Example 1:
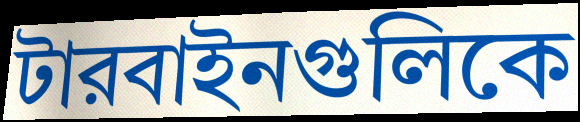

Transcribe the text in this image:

টারবাইনগুলিকে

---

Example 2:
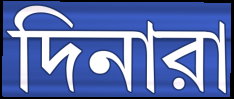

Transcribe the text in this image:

দিনারা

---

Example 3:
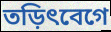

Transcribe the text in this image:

তড়িৎবেগে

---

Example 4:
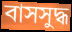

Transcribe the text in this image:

বাসসুদ্ধ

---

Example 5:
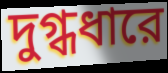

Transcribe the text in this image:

দুগ্ধধারে